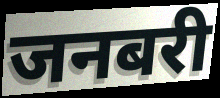
जनबरी